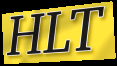
HLT